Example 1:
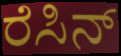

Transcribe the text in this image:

ರೆಸಿನ್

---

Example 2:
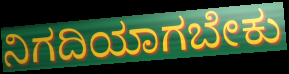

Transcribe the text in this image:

ನಿಗದಿಯಾಗಬೇಕು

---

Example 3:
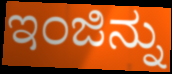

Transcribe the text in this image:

ಇಂಜಿನ್ನು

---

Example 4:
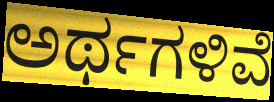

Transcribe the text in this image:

ಅರ್ಥಗಳಿವೆ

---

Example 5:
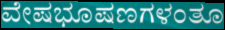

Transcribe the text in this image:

ವೇಷಭೂಷಣಗಳಂತೂ